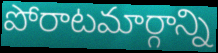
పోరాటమార్గాన్ని